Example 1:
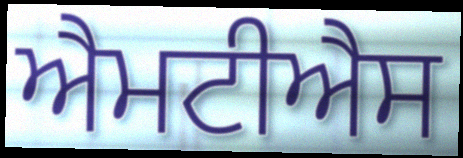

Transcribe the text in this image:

ਐਮਟੀਐਸ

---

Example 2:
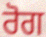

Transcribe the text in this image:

ਰੋਗ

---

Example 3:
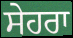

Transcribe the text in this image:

ਸੇਹਰਾ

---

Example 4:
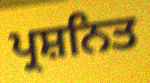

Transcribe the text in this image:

ਪ੍ਰਸ਼ਨਿਤ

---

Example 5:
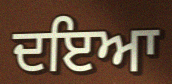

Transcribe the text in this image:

ਦਇਆ